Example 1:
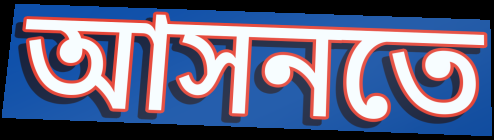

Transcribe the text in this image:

আসনতে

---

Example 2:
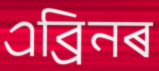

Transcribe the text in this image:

এব্ৰিনৰ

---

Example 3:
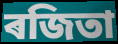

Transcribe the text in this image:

ৰজিতা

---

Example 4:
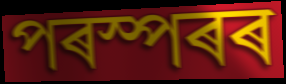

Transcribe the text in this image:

পৰস্পৰৰ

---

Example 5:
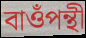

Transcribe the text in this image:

বাওঁপন্থী